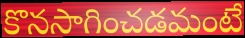
కొనసాగించడమంటే